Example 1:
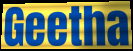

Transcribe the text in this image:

Geetha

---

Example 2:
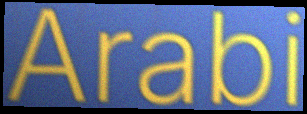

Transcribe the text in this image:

Arabi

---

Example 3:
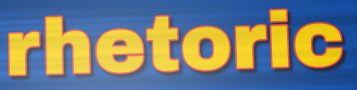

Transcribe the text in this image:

rhetoric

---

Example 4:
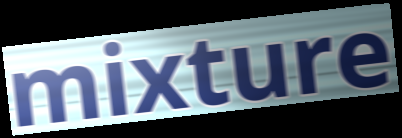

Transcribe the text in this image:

mixture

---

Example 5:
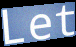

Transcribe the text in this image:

Let